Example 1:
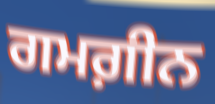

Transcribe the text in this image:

ਗਮਗ਼ੀਨ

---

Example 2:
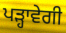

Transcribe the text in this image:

ਪੜ੍ਹਾਵੇਗੀ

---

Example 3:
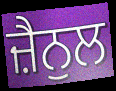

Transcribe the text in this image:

ਜ਼ੈਨੁਲ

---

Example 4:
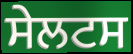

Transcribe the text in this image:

ਸੇਲਟਸ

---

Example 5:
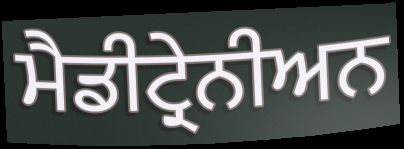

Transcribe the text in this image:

ਮੈਡੀਟ੍ਰੇਨੀਅਨ